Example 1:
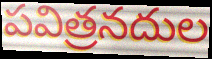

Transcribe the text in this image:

పవిత్రనదుల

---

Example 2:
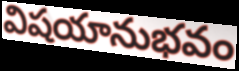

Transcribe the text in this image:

విషయానుభవం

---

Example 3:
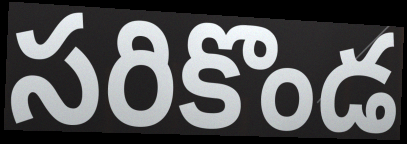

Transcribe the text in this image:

సరికొండ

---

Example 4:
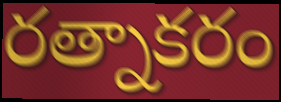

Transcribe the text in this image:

రత్నాకరం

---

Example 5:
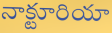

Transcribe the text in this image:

నాక్టూరియా